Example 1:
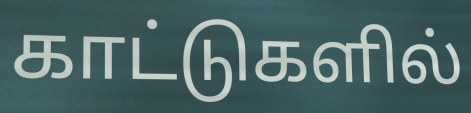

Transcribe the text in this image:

காட்டுகளில்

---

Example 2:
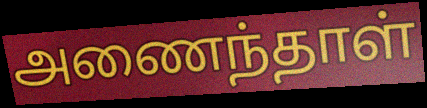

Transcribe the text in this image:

அணைந்தாள்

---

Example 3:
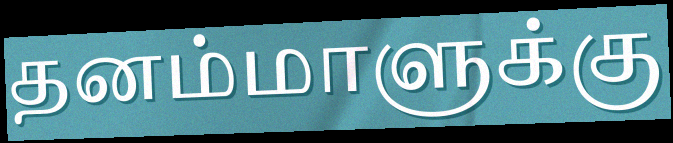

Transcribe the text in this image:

தனம்மாளுக்கு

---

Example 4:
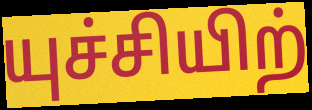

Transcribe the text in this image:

யுச்சியிற்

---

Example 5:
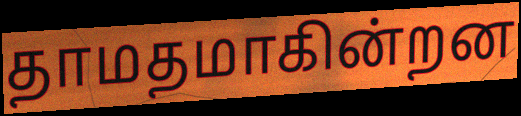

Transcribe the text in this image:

தாமதமாகின்றன